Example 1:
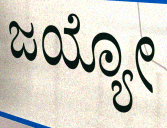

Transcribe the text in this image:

ಜಯ್ಯೋ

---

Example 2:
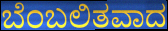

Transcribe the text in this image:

ಬೆಂಬಲಿತವಾದ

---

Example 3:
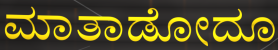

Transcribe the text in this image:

ಮಾತಾಡೋದೂ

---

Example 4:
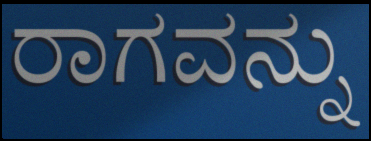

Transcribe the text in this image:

ರಾಗವನ್ನು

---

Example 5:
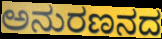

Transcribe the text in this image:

ಅನುರಣನದ